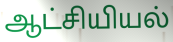
ஆட்சியியல்